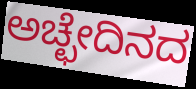
ಅಚ್ಛೇದಿನದ